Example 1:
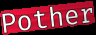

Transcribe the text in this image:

Pother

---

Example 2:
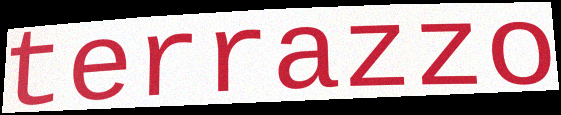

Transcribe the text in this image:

terrazzo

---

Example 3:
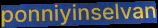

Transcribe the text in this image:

ponniyinselvan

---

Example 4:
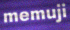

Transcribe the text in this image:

memuji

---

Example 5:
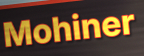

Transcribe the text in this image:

Mohiner